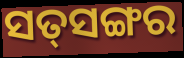
ସତ୍‌ସଙ୍ଗର